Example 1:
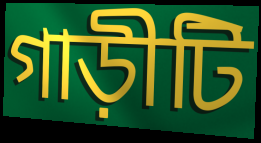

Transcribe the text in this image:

গাড়ীটি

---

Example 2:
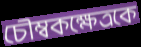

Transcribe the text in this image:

চৌম্বকক্ষেত্রকে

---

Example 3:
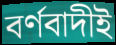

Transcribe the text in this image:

বর্ণবাদীই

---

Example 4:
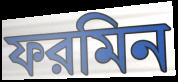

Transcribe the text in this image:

ফরমিন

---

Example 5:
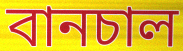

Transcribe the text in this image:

বানচাল